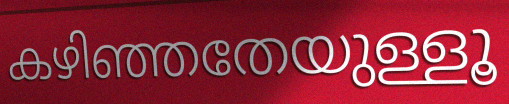
കഴിഞ്ഞതേയുള്ളൂ